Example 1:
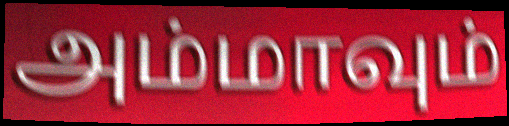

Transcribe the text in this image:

அம்மாவும்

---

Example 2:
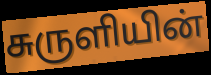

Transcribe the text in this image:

சுருளியின்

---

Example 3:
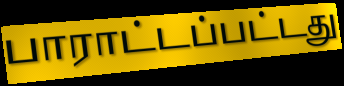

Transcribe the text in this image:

பாராட்டப்பட்டது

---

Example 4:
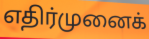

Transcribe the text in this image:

எதிர்முனைக்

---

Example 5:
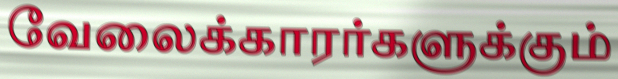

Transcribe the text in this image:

வேலைக்காரர்களுக்கும்